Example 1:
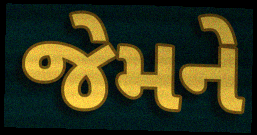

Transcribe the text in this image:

જેમને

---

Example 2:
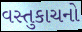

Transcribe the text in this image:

વસ્તુકાચનો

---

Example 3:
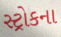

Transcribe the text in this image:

સ્ટ્રોકના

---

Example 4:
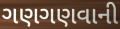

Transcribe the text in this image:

ગણગણવાની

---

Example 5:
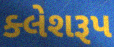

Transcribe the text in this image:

ક્લેશરૂપ